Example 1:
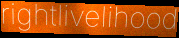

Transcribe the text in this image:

rightlivelihood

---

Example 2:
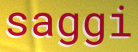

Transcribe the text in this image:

saggi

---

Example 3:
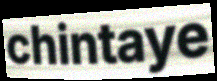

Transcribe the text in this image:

chintaye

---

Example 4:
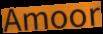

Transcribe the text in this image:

Amoor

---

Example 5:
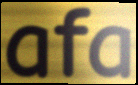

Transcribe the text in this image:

afa